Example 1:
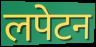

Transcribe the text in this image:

लपेटन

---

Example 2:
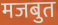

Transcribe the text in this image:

मजबुत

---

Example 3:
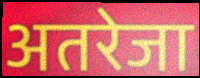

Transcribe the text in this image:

अतरेजा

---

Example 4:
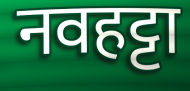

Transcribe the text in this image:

नवहट्टा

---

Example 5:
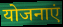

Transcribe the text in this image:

योजनाएं